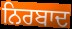
ਨਿਰਬਾਦ